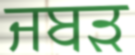
ਜਬੜ